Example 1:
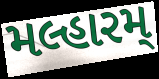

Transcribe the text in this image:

મલ્હારમ્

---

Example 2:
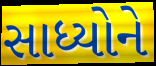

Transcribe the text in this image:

સાધ્યોને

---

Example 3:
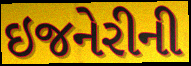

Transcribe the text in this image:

ઇજનેરીની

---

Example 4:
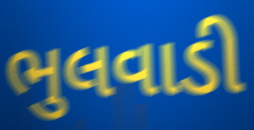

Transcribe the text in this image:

ભુલવાડી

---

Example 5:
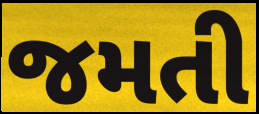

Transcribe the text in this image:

જમતી